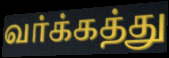
வர்க்கத்து